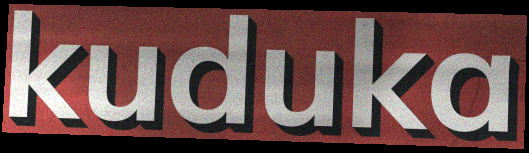
kuduka